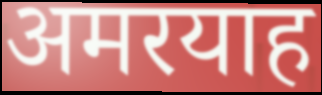
अमरयाह